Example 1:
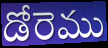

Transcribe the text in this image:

డోరెము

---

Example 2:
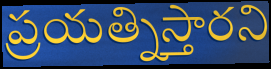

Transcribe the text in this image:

ప్రయత్నిస్తారని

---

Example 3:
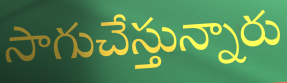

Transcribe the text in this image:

సాగుచేస్తున్నారు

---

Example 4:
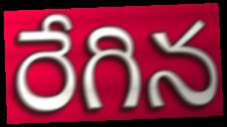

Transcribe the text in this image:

రేగిన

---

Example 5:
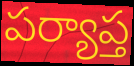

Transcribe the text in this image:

పర్యాప్త